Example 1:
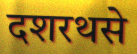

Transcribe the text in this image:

दशरथसे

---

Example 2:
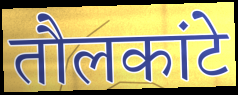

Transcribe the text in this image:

तौलकांटे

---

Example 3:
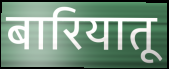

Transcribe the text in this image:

बारियातू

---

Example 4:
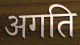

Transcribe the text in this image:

अगति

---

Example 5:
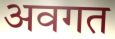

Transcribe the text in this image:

अवगत